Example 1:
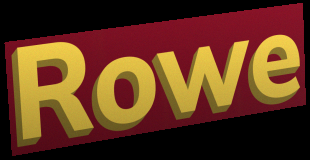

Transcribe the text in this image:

Rowe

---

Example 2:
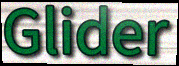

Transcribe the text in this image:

Glider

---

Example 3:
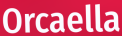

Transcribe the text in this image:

Orcaella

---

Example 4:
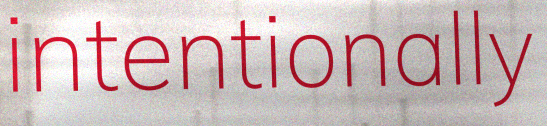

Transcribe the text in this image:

intentionally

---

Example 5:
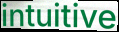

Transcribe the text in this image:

intuitive